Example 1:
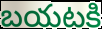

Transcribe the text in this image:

బయటకి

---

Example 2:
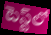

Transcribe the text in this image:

టెస్ట్‌లో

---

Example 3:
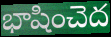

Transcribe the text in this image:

భాషించెద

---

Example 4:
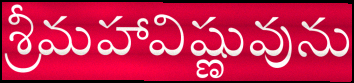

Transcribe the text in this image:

శ్రీమహావిష్ణువును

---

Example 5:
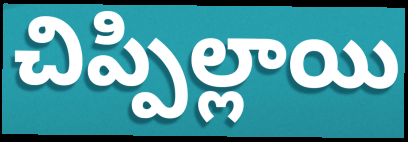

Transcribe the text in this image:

చిప్పిల్లాయి